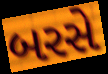
બરસે